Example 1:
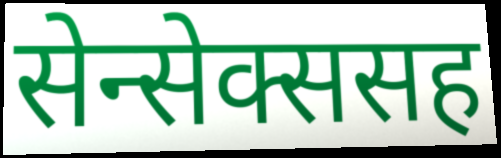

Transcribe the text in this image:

सेन्सेक्ससह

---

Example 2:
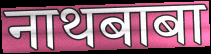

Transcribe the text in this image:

नाथबाबा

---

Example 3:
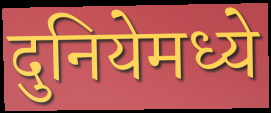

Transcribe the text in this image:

दुनियेमध्ये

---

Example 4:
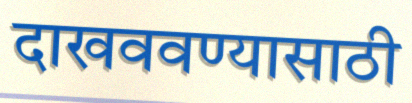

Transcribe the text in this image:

दाखववण्यासाठी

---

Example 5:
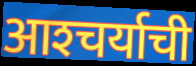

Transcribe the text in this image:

आश्‍चर्याची